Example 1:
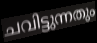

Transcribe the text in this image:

ചവിട്ടുന്നതും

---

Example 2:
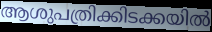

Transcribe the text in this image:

ആശുപത്രിക്കിടക്കയിൽ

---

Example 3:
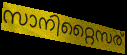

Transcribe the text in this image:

സാനിറ്റൈസര്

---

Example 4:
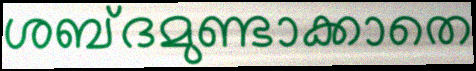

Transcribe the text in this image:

ശബ്ദമുണ്ടാക്കാതെ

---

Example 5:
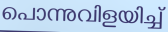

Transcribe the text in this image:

പൊന്നുവിളയിച്ച്